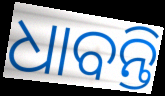
ଧାବନ୍ତି